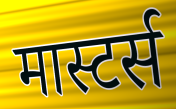
मास्टर्स